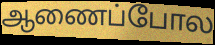
ஆணைப்போல